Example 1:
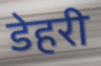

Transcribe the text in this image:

डेहरी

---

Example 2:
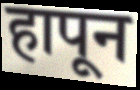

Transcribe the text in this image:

हापून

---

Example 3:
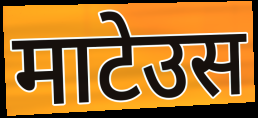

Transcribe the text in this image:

माटेउस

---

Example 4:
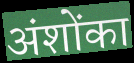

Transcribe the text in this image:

अंशोंका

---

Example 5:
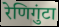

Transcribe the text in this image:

रेणिगुंटा